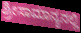
ಶ್ರೀಸಾಮಾನ್ಯನಲ್ಲಿ